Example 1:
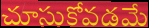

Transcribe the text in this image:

చూసుకోవడమే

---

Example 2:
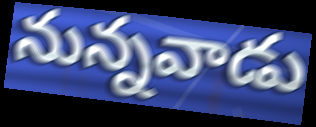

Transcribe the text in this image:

నున్నవాడు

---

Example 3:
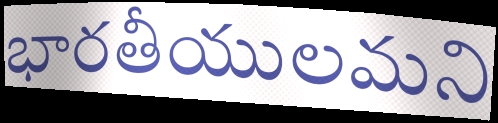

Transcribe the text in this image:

భారతీయులమని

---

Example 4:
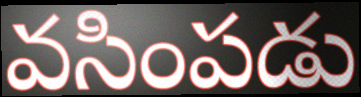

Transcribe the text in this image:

వసింపడు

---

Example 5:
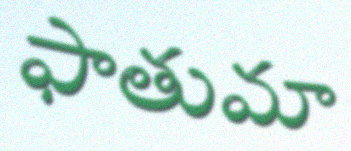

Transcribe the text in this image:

ఫాతుమా